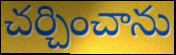
చర్చించాను